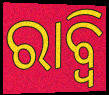
ରାବ୍ବି